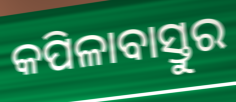
କପିଳାବାସ୍ତୁର